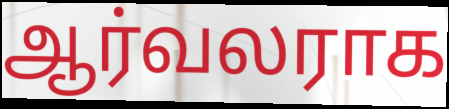
ஆர்வலராக